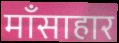
माँसाहार